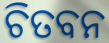
ଚିତବନ